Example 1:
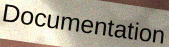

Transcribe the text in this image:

Documentation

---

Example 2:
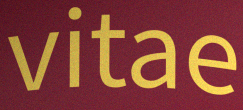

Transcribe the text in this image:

vitae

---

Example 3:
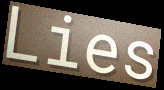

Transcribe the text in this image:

Lies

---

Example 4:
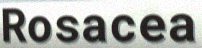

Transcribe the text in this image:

Rosacea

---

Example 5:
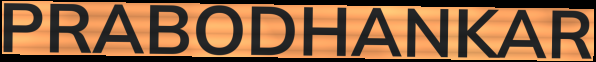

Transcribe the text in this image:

PRABODHANKAR